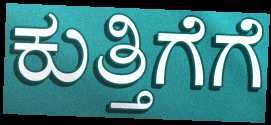
ಕುತ್ತಿಗೆಗೆ